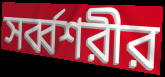
সর্ব্বশরীর